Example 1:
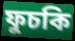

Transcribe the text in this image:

ফুচকি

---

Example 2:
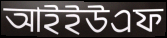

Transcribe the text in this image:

আইইউএফ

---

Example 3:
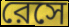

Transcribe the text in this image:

রেসে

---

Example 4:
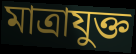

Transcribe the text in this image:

মাত্রাযুক্ত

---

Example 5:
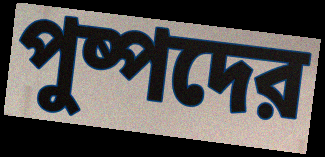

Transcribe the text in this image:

পুষ্পদের